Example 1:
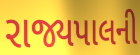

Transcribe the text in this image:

રાજ્યપાલની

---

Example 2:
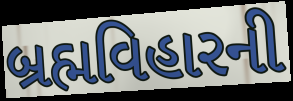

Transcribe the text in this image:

બ્રહ્મવિહારની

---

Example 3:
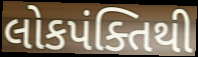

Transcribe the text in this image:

લોકપંક્તિથી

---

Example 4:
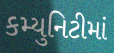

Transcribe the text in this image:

કમ્યુનિટીમાં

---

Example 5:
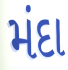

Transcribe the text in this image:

મંદા